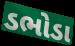
ડભોડા